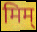
मिम्